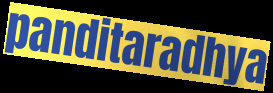
panditaradhya